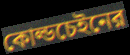
কোল্ডচেইনের